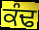
ਕੰਢ